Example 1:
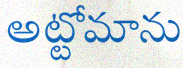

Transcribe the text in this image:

అట్టోమాను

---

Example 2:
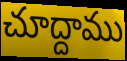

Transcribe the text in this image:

చూద్దాము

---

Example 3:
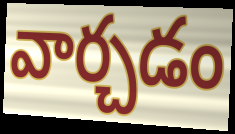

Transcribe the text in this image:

వార్చడం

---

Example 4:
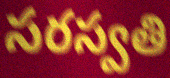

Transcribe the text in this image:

సరస్వతి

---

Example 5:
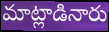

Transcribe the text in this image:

మాట్లాడినారు